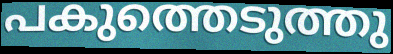
പകുത്തെടുത്തു